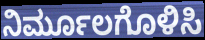
ನಿರ್ಮೂಲಗೊಳಿಸಿ